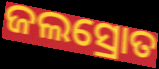
ଜଲସ୍ରୋତ